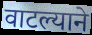
वाटल्याने